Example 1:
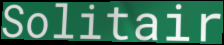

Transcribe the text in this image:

Solitair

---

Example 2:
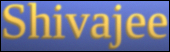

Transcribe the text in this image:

Shivajee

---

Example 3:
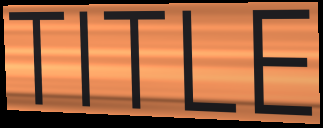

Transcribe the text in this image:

TITLE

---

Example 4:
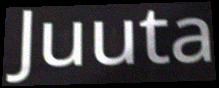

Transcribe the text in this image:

Juuta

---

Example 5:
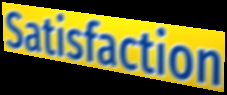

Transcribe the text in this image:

Satisfaction